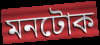
মনটোক